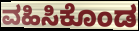
ವಹಿಸಿಕೊಂಡ